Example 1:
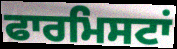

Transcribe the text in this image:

ਫਾਰਮਿਸਟਾਂ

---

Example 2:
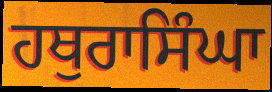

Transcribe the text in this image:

ਹਥੁਰਾਸਿੰਘਾ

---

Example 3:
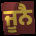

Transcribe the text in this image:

ਜੂਨੈ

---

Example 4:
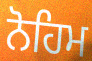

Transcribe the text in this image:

ਨੋਹਿਮ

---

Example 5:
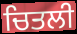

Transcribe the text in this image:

ਚਿਤਲੀ